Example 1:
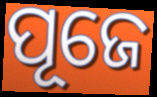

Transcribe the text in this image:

ପୂଜେ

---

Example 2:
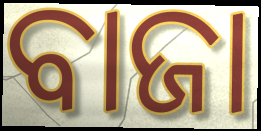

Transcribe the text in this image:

ବାଜା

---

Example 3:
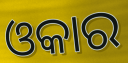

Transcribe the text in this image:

ଓକାର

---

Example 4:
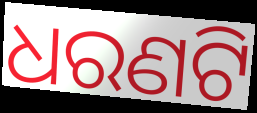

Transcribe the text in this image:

ଧରଣଟି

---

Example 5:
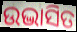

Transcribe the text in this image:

ଉଦ୍ଭାସିତ